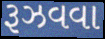
રૂઝવવા